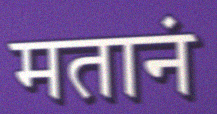
मतानं